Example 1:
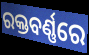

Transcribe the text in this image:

ରକ୍ତବର୍ଣ୍ଣରେ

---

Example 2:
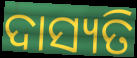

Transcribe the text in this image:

ଦାସ୍ୟତି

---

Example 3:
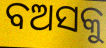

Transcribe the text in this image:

ବଅସକୁ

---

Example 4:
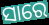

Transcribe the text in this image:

ସାରେ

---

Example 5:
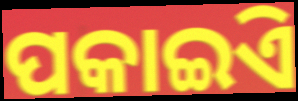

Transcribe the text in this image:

ପକାଇିଏ